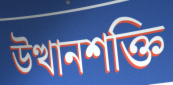
উত্থানশক্তি